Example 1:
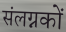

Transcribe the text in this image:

संलग्नकों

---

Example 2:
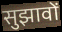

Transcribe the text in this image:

सुझावों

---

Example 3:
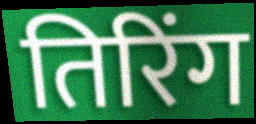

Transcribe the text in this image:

तिरिंग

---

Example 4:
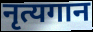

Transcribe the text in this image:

नृत्यगान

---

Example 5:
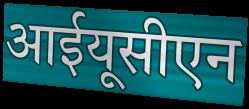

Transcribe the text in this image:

आईयूसीएन